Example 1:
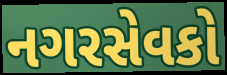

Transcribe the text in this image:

નગરસેવકો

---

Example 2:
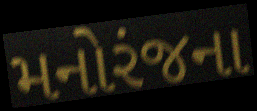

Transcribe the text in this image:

મનોરંજના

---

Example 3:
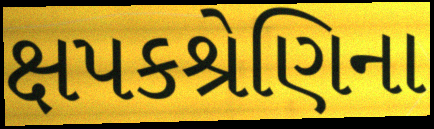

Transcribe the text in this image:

ક્ષપકશ્રેણિના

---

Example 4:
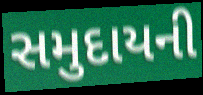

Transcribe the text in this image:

સમુદાયની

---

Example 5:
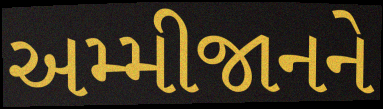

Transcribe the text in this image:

અમ્મીજાનને